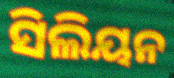
ସିଲିୟନ